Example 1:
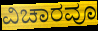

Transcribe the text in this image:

ವಿಚಾರವೂ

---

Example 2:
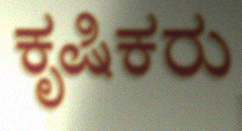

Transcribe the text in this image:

ಕೃಷಿಕರು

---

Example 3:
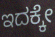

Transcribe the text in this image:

ಇದಕ್ಕೇ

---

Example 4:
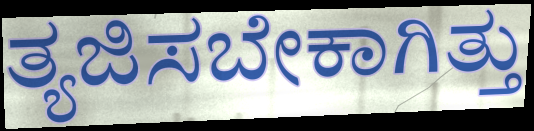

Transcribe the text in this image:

ತ್ಯಜಿಸಬೇಕಾಗಿತ್ತು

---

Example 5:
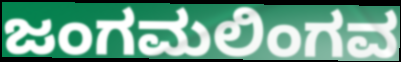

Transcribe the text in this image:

ಜಂಗಮಲಿಂಗವ